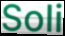
Soli